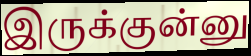
இருக்குன்னு